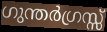
ഗുന്തർഗ്രസ്സ്